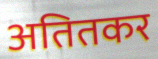
अतितकर